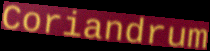
Coriandrum